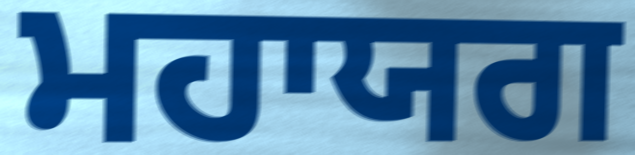
ਮਹਾਯਗ